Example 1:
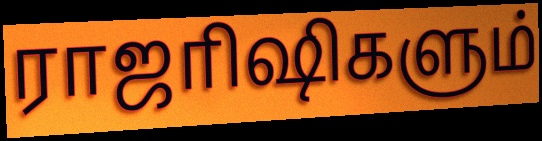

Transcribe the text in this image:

ராஜரிஷிகளும்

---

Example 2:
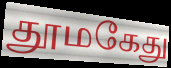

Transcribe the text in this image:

தூமகேது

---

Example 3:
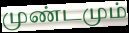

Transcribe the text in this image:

முண்டமும்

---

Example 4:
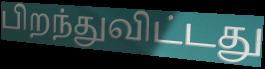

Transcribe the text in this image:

பிறந்துவிட்டது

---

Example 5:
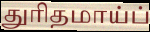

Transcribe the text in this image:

துரிதமாய்ப்